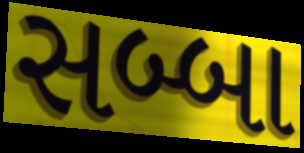
સબ્બા